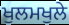
ਖੁਲਮਖੁਲੇ